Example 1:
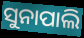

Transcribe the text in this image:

ସୁନାପାଲି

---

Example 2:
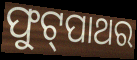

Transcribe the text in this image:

ଫୁଟ୍‌ପାଥର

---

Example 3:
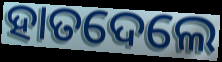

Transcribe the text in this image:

ହାତଦେଲେ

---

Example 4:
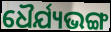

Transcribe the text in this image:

ଧୈର୍ଯ୍ୟଭଙ୍ଗ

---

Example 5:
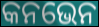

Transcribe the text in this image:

କନଭେନ